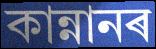
কান্নানৰ